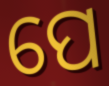
ପେ